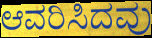
ಆವರಿಸಿದವು